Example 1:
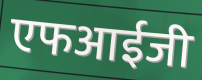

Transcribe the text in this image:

एफआईजी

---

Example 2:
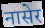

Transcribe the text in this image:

नासेर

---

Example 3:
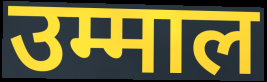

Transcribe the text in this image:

उम्माल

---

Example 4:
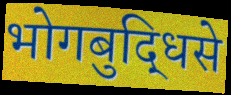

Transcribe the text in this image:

भोगबुद्धिसे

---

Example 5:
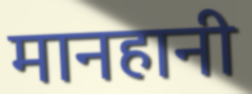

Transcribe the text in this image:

मानहानी